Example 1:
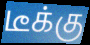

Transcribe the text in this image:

டீக்கு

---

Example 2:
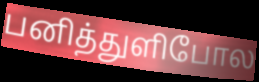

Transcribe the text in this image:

பனித்துளிபோல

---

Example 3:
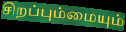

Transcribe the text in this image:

சிறப்பும்மையும்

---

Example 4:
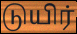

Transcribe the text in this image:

டுயிர்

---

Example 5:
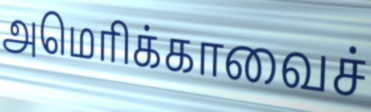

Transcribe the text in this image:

அமெரிக்காவைச்